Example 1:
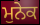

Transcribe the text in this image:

ਮੁਨੇਕ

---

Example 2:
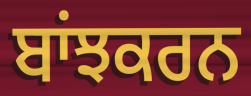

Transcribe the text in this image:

ਬਾਂਝਕਰਨ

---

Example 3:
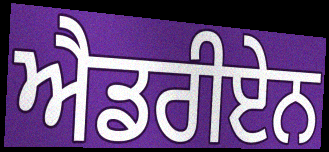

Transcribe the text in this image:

ਐਡਰੀਏਨ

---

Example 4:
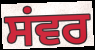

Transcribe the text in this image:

ਸਂਵਰ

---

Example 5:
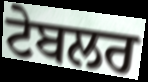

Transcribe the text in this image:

ਟੇਬਲਰ